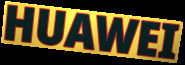
HUAWEI